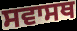
ਸਵਾਸਥ